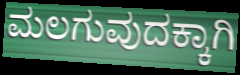
ಮಲಗುವುದಕ್ಕಾಗಿ